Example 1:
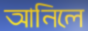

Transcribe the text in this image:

আনিলে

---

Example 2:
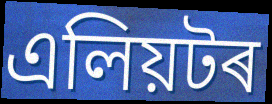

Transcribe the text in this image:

এলিয়টৰ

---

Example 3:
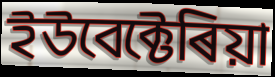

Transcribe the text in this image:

ইউবেক্টেৰিয়া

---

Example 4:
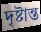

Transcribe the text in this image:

দৃষ্টান্ত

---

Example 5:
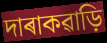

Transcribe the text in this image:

দাৰাকৱাড়ি